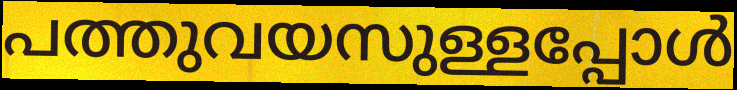
പത്തുവയസുള്ളപ്പോൾ